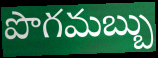
పొగమబ్బు